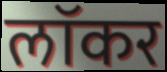
लॉकर